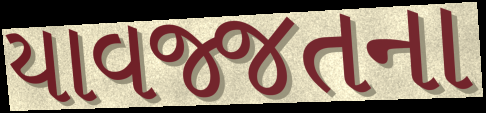
યાવજ્જતના